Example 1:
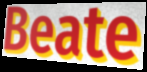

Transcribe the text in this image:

Beate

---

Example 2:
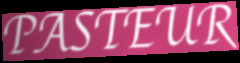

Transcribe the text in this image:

PASTEUR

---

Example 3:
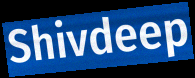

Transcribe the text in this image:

Shivdeep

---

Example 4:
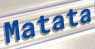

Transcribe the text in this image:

Matata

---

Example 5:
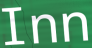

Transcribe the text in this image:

Inn